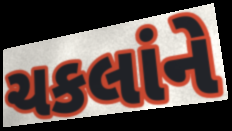
ચકલાંને